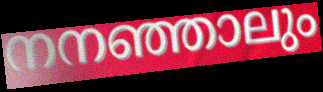
നനഞ്ഞാലും